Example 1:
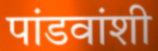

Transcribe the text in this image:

पांडवांशी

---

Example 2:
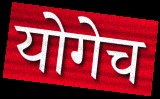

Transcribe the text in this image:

योगेच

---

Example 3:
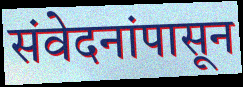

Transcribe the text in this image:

संवेदनांपासून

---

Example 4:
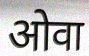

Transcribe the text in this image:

ओवा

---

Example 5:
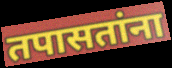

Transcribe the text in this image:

तपासतांना